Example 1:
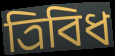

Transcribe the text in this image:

ত্রিবিধ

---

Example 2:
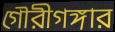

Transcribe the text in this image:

গৌরীগঙ্গার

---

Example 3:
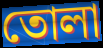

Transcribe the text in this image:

তোলা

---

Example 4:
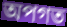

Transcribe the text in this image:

অপগত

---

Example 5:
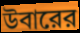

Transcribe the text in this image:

উবারের